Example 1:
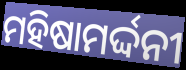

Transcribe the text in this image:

ମହିଷାମର୍ଦ୍ଦନୀ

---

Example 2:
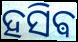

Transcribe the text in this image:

ହସିଵ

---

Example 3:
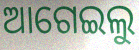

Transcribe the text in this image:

ଆଗେଇଲୁ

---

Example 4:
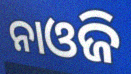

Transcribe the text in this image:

ନାଓଜି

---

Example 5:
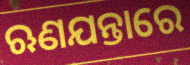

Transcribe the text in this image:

ଋଣଯନ୍ତାରେ